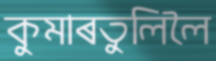
কুমাৰতুলিলৈ